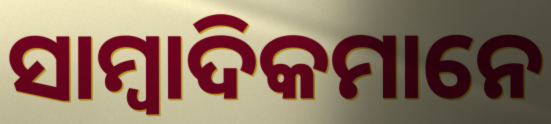
ସାମ୍ବାଦିକମାନେ